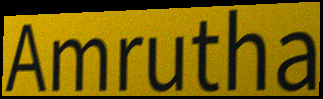
Amrutha